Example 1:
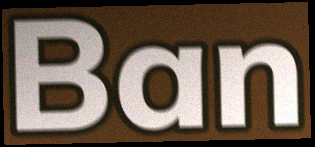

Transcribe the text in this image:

Ban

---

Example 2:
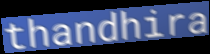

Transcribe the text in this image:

thandhira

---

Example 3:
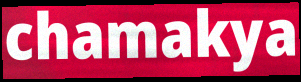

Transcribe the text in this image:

chamakya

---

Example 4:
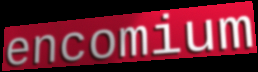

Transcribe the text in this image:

encomium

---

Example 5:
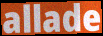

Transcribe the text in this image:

allade